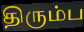
திரும்ப